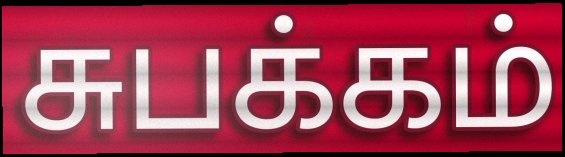
சுபக்கம்